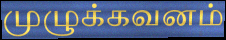
முழுக்கவனம்